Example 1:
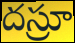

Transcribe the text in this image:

దస్రూ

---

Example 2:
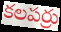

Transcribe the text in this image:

కలపర్రు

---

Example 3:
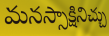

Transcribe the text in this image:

మనస్సాక్షినిచ్చు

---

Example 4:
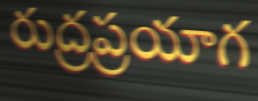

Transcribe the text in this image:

రుద్రప్రయాగ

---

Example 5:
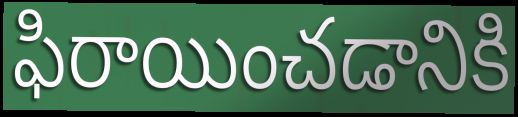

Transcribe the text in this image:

ఫిరాయించడానికి